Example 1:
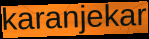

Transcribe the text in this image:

karanjekar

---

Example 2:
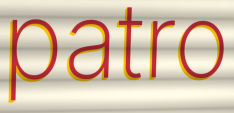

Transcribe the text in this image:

patro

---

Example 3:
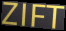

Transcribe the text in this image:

ZIFT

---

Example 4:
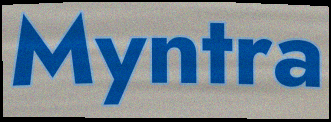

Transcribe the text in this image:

Myntra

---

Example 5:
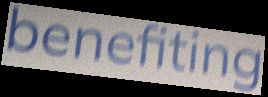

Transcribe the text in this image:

benefiting